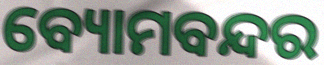
ବ୍ୟୋମବନ୍ଦର